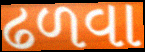
ઢળવા